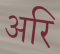
अरि